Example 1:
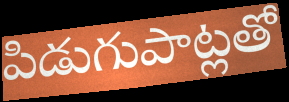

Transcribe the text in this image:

పిడుగుపాట్లతో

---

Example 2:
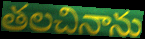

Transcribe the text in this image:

తలచినాను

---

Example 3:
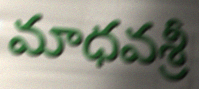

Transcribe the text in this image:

మాధవశ్రీ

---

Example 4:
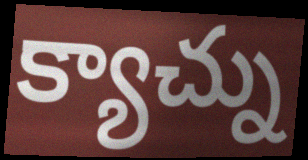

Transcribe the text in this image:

క్యాచ్ను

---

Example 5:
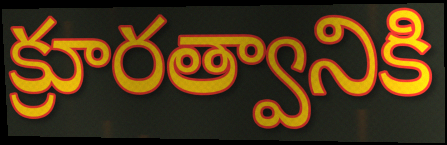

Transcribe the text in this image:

క్రూరత్వానికి